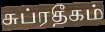
சுப்ரதீகம்